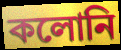
কলোনি